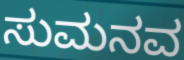
ಸುಮನವ